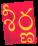
శీర్ణ